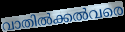
വാതിൽക്കൽവരെ